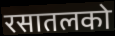
रसातलको